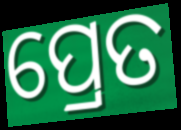
ପ୍ରେତ